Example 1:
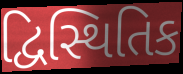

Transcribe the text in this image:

દ્વિસ્થિતિક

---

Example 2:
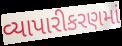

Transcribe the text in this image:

વ્યાપારીકરણમાં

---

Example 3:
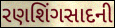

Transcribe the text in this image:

રણશિંગસાદની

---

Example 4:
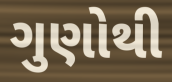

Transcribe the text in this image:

ગુણોથી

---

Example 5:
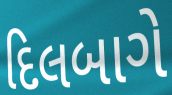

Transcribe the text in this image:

દિલબાગે